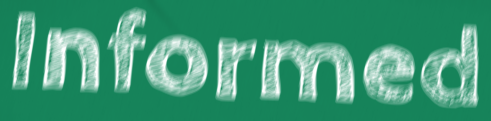
Informed